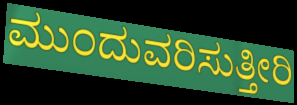
ಮುಂದುವರಿಸುತ್ತೀರಿ